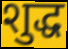
शुद्ध